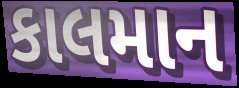
કાલમાન